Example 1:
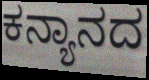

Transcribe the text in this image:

ಕನ್ಯಾನದ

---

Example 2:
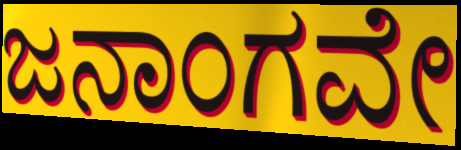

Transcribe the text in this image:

ಜನಾಂಗವೇ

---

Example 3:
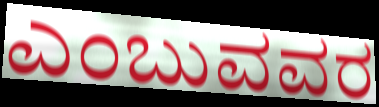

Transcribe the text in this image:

ಎಂಬುವವರ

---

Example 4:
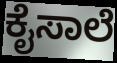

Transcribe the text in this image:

ಕೈಸಾಲೆ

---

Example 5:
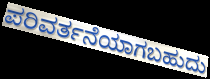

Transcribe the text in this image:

ಪರಿವರ್ತನೆಯಾಗಬಹುದು